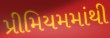
પ્રીમિયમમાંથી